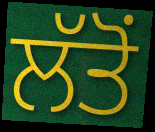
ਲੱਤੋਂ